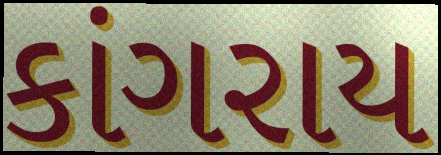
કાંગરાય